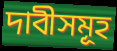
দাবীসমূহ